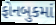
ફોનબુકમાં